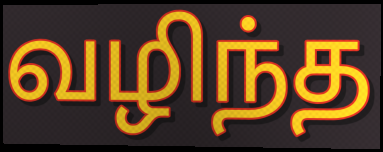
வழிந்த